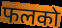
फलको